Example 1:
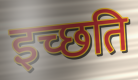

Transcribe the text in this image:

इच्छति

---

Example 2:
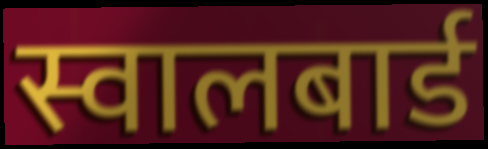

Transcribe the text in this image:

स्वालबार्ड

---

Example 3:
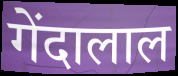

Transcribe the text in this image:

गेंदालाल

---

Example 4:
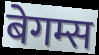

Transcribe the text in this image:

बेगम्स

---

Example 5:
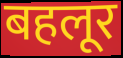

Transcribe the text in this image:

बहलूर